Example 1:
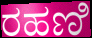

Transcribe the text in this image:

ರಹಣಿ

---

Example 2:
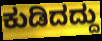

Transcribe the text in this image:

ಕುಡಿದದ್ದು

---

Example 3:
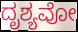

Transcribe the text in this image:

ದೃಶ್ಯವೋ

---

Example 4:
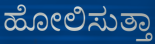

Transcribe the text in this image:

ಹೋಲಿಸುತ್ತಾ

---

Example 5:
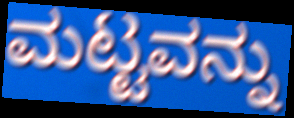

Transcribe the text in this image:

ಮಟ್ಟವನ್ನು